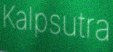
Kalpsutra